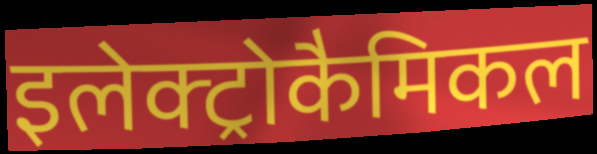
इलेक्ट्रोकैमिकल